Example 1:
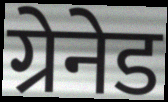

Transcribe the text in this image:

ग्रेनेड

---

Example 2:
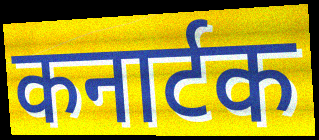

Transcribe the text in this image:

कनार्टक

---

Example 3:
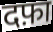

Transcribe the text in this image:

दफ़ा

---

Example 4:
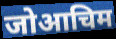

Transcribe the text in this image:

जोआचिम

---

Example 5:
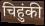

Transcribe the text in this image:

चिहुंकी